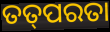
ତତ୍‌ପରତା